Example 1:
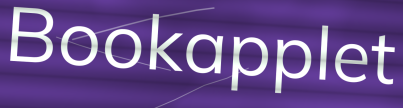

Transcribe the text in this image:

Bookapplet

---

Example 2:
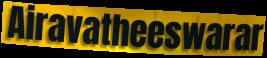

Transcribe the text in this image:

Airavatheeswarar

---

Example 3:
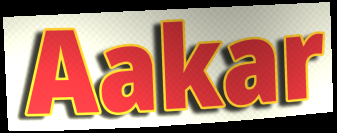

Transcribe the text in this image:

Aakar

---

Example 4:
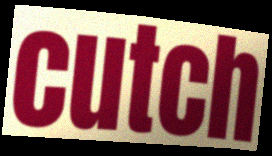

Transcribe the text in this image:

cutch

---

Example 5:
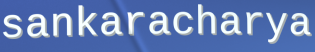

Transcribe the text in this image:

sankaracharya